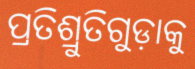
ପ୍ରତିଶ୍ରୁତିଗୁଡ଼ାକୁ